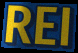
REI